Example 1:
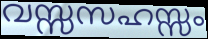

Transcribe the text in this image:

വസ്സസഹസ്സം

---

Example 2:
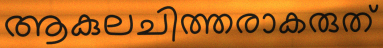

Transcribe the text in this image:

ആകുലചിത്തരാകരുത്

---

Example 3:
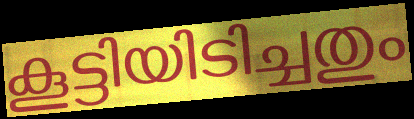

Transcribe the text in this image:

കൂട്ടിയിടിച്ചതും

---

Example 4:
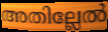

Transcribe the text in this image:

അതില്ലേൽ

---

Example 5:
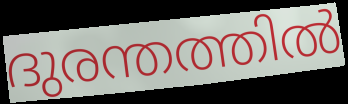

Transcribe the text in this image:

ദുരന്തത്തിൽ